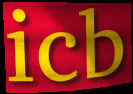
icb